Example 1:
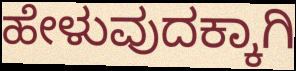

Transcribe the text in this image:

ಹೇಳುವುದಕ್ಕಾಗಿ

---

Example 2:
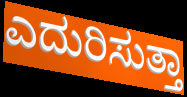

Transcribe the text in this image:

ಎದುರಿಸುತ್ತಾ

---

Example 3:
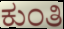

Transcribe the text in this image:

ಕುಂತಿ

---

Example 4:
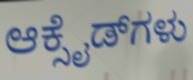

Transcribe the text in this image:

ಆಕ್ಸೈಡ್‌ಗಳು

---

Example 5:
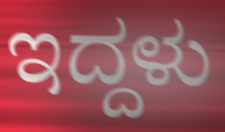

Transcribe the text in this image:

ಇದ್ದಳು